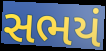
સભયં